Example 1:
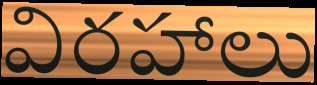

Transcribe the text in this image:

విరహాలు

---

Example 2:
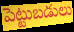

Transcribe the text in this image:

పెట్టుబడులు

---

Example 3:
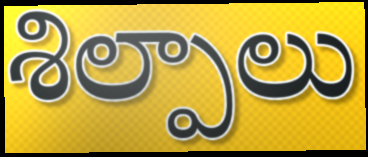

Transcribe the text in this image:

శిల్పాలు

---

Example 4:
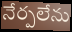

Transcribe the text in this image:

నేర్పలేను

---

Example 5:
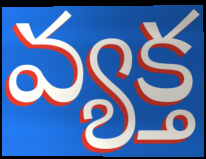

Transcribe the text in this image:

వ్యక్త